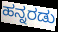
ಹನ್ನರಡು